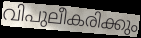
വിപുലീകരിക്കും